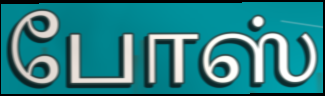
போஸ்